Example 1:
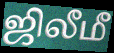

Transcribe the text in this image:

ஜிலீமீ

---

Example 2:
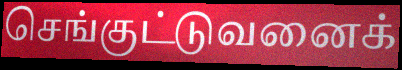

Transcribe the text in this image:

செங்குட்டுவனைக்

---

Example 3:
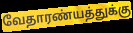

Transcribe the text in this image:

வேதாரண்யத்துக்கு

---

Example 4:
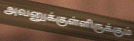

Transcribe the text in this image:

அவனுக்குள்ளிருக்கும்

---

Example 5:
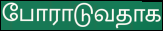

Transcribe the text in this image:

போராடுவதாக